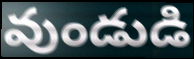
వుండుడి